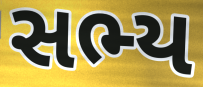
સભ્ય